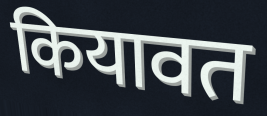
कियावत